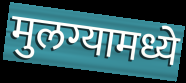
मुलग्यामध्ये